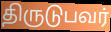
திருடுபவர்